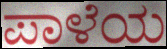
ಪಾಳೆಯ